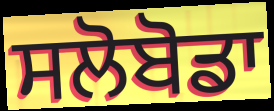
ਸਲੋਬੋਡਾ